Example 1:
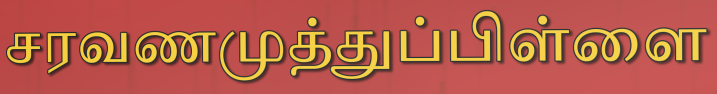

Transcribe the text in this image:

சரவணமுத்துப்பிள்ளை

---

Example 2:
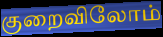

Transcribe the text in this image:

குறைவிலோம்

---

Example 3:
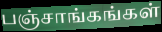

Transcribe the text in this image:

பஞ்சாங்கங்கள்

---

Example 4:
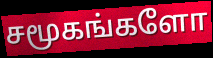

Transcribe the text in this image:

சமூகங்களோ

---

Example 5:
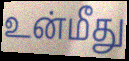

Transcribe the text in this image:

உன்மீது